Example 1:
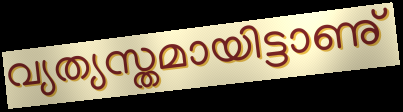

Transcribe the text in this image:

വ്യത്യസ്തമായിട്ടാണു്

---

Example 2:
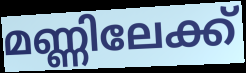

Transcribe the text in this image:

മണ്ണിലേക്ക്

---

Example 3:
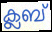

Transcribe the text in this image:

ക്ലബ്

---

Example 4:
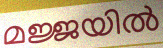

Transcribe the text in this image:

മജ്ജയിൽ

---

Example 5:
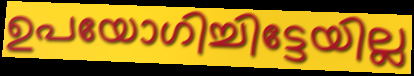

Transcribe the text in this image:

ഉപയോഗിച്ചിട്ടേയില്ല